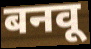
बनवू